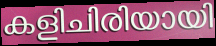
കളിചിരിയായി